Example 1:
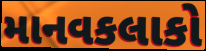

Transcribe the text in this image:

માનવકલાકો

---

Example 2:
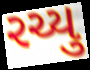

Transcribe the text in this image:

રચ્યુ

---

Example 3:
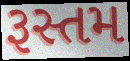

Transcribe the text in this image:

રૂસ્તમ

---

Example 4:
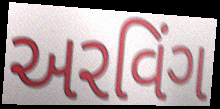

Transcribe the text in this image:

અરવિંગ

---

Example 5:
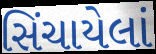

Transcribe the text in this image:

સિંચાયેલાં